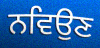
ਨਵਿਉਣ